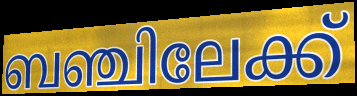
ബഞ്ചിലേക്ക്